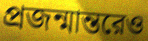
প্রজন্মান্তরেও